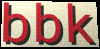
bbk